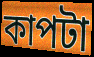
কাপটা